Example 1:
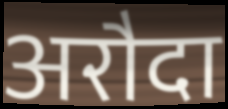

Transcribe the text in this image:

अरौदा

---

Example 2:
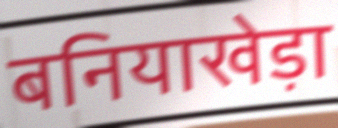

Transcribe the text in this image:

बनियाखेड़ा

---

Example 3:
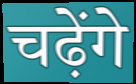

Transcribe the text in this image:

चढ़ेंगे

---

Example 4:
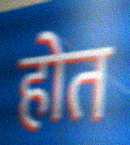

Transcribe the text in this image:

होत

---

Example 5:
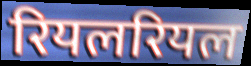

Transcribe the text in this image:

रियलरियल